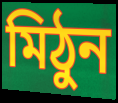
মিঠুন